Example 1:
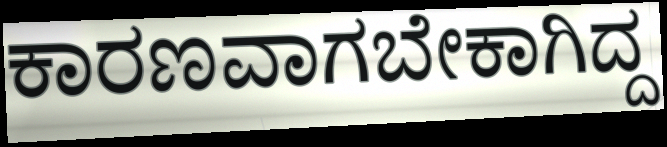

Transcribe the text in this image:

ಕಾರಣವಾಗಬೇಕಾಗಿದ್ದ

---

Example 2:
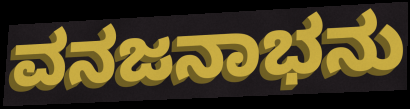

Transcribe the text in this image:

ವನಜನಾಭನು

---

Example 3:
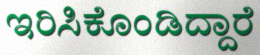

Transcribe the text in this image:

ಇರಿಸಿಕೊಂಡಿದ್ದಾರೆ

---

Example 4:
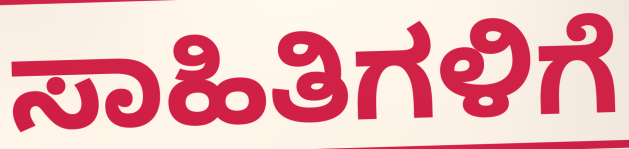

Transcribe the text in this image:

ಸಾಹಿತಿಗಳಿಗೆ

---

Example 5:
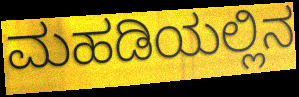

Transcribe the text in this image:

ಮಹಡಿಯಲ್ಲಿನ